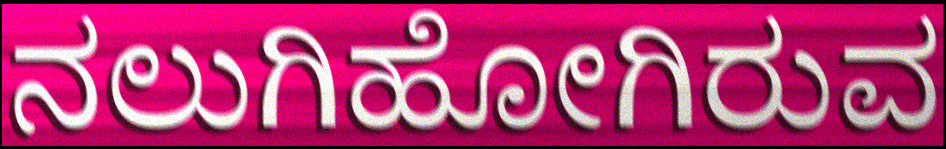
ನಲುಗಿಹೋಗಿರುವ